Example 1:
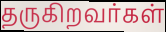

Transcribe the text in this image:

தருகிறவர்கள்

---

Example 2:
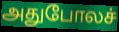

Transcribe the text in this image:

அதுபோலச்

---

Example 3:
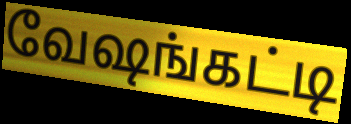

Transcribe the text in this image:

வேஷங்கட்டி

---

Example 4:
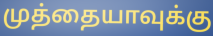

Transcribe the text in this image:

முத்தையாவுக்கு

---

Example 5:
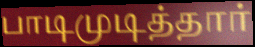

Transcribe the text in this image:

பாடிமுடித்தார்